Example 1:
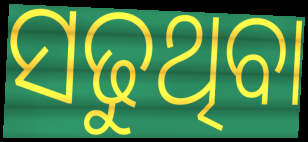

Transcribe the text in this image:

ସଢୁଥିବା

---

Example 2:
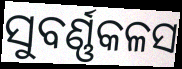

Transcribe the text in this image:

ସୁବର୍ଣ୍ଣକଳସ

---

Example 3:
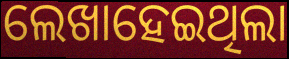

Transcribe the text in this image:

ଲେଖାହେଇଥିଲା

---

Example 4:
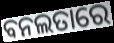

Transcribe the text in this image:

ବନଲତାରେ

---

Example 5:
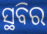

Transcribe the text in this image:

ସ୍ଥବିର